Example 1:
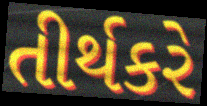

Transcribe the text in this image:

તીર્થકરે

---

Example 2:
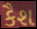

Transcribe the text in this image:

કૈશ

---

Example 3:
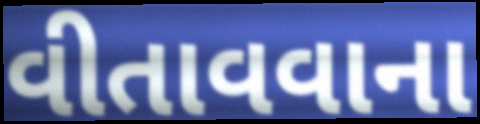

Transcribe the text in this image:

વીતાવવાના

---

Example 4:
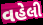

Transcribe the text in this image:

વહેલી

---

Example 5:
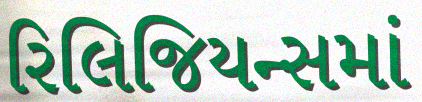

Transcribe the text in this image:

રિલિજિયન્સમાં